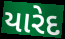
યારેદ